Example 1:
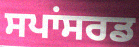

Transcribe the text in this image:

ਸਪਾਂਸਰਡ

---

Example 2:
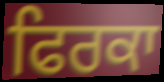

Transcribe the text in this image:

ਫਿਰਕਾ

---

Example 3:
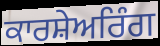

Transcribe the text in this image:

ਕਾਰਸ਼ੇਅਰਿੰਗ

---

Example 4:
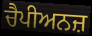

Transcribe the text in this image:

ਚੈਪੀਅਨਜ਼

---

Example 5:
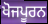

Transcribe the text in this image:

ਖੋਜਪੂਰਨ